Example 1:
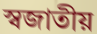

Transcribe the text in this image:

স্বজাতীয়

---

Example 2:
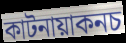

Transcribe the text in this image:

কাটনায়াকনচ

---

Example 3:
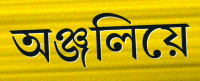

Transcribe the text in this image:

অঞ্জলিয়ে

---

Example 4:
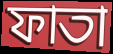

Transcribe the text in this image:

ফাতা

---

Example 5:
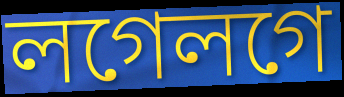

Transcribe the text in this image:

লগেলগে